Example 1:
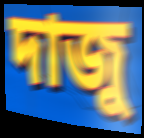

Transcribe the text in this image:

দাজু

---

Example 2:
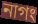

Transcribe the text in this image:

নাগং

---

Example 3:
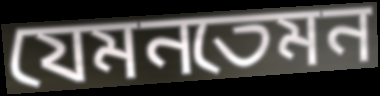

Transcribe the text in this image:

যেমনতেমন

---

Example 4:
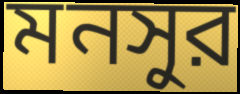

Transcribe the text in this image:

মনসুর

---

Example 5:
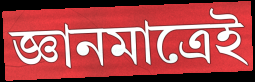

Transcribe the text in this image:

জ্ঞানমাত্রেই